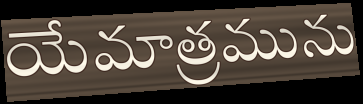
యేమాత్రమును